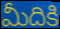
మీదికి